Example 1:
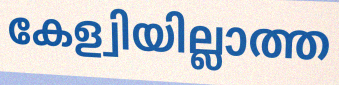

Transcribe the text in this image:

കേള്വിയില്ലാത്ത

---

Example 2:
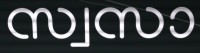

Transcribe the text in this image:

സ്വസാ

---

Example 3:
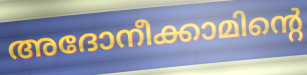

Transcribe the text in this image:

അദോനീക്കാമിന്റെ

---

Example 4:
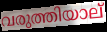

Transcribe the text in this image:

വരുത്തിയാല്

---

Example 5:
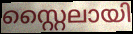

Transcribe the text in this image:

സ്റ്റൈലായി